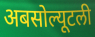
अबसोल्यूटली